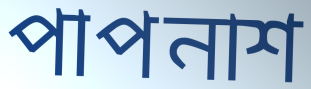
পাপনাশ